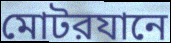
মোটরযানে